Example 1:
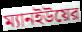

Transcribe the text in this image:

ম্যানইউয়ের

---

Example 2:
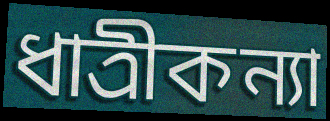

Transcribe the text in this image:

ধাত্রীকন্যা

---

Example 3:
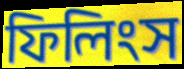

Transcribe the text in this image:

ফিলিংস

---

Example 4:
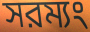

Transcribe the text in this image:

সরম্যং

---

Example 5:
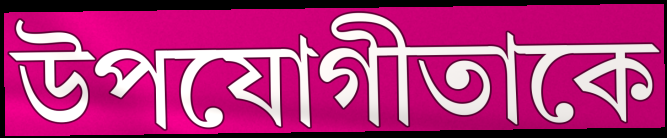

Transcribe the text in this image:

উপযোগীতাকে